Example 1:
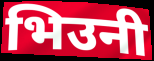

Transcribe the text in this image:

भिउनी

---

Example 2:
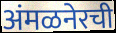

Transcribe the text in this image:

अंमळनेरची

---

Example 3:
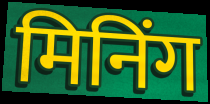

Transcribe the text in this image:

मिनिंग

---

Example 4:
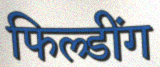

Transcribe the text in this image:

फिल्डींग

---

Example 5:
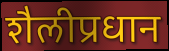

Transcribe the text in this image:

शैलीप्रधान